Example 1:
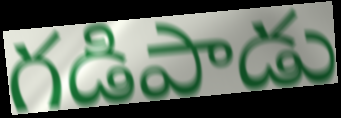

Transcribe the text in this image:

గడిపాడు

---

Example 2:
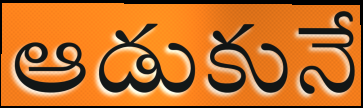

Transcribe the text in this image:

ఆడుకునే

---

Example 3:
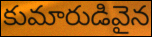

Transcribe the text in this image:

కుమారుడివైన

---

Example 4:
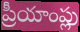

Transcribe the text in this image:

ప్రీయాంప్లు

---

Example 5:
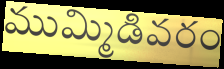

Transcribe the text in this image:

ముమ్మిడివరం